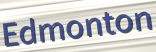
Edmonton